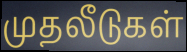
முதலீடுகள்